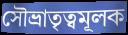
সৌভ্রাতৃত্বমূলক